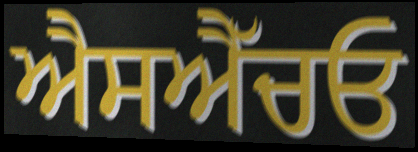
ਐਸਐੱਚਓ